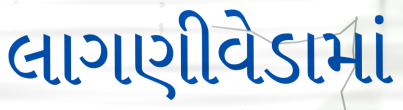
લાગણીવેડામાં